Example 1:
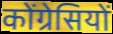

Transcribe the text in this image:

कोंग्रेसियों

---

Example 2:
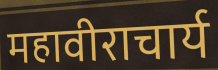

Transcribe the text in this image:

महावीराचार्य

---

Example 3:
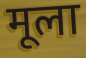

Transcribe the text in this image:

मूला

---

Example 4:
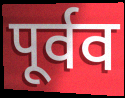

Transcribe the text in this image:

पूर्वव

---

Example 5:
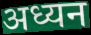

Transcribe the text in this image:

अध्यन